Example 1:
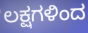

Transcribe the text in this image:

ಲಕ್ಷಗಳಿಂದ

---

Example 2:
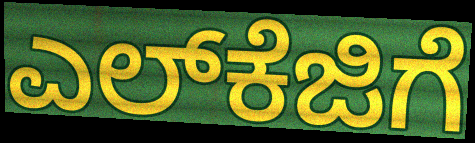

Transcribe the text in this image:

ಎಲ್‌ಕೆಜಿಗೆ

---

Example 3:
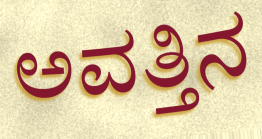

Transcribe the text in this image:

ಅವತ್ತಿನ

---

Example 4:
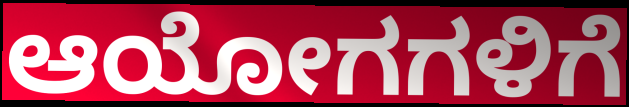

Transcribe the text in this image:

ಆಯೋಗಗಳಿಗೆ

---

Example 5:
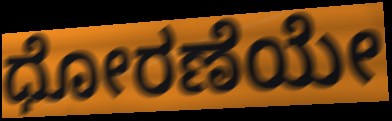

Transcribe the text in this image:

ಧೋರಣೆಯೇ